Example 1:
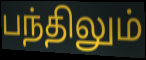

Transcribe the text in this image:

பந்திலும்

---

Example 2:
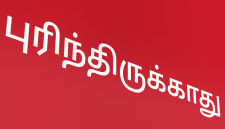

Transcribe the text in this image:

புரிந்திருக்காது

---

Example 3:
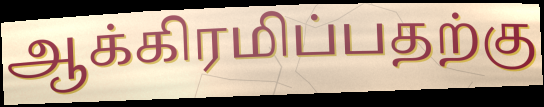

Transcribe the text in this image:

ஆக்கிரமிப்பதற்கு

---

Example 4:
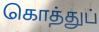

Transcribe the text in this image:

கொத்துப்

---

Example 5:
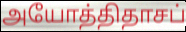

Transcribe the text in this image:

அயோத்திதாசப்